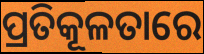
ପ୍ରତିକୂଳତାରେ